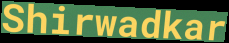
Shirwadkar